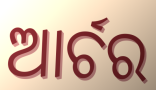
ଆର୍ଚର